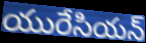
యురేసియన్